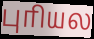
புரியல